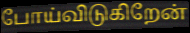
போய்விடுகிறேன்